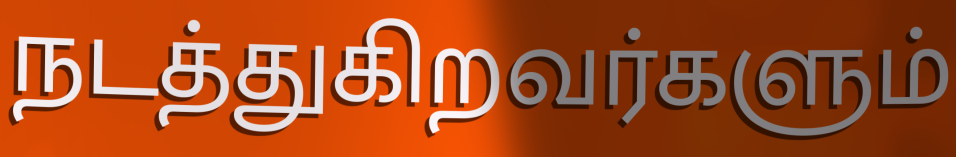
நடத்துகிறவர்களும்